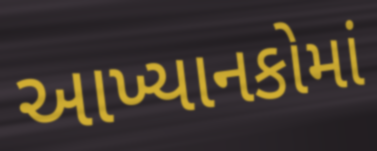
આખ્યાનકોમાં